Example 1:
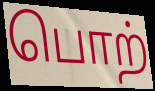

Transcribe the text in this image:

பொற்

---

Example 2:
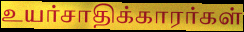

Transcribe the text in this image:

உயர்சாதிக்காரர்கள்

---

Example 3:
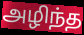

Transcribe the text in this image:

அழிந்த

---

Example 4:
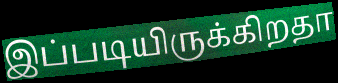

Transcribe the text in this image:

இப்படியிருக்கிறதா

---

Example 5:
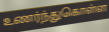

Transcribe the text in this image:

உணர்ந்துகொள்ள